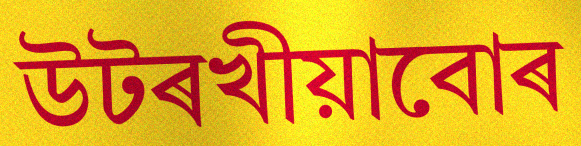
উটৰখীয়াবোৰ